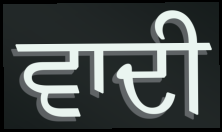
ਵਾਦੀ